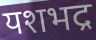
यशभद्र